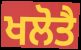
ਖਲੋਤੈ